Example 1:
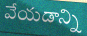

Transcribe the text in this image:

వేయడాన్ని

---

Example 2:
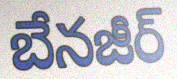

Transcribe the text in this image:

బేనజీర్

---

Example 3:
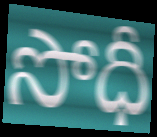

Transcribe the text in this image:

సోధీ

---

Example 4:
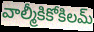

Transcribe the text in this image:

వాల్మీకికోకిలమ్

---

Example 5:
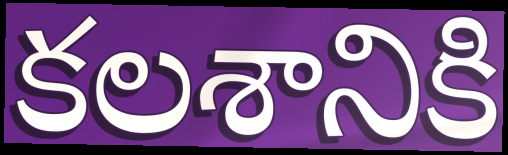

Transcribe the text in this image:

కలశానికి